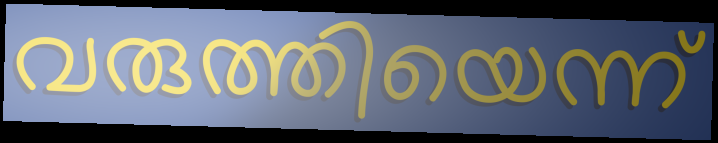
വരുത്തിയെന്ന്